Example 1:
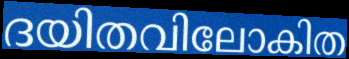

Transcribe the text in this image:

ദയിതവിലോകിത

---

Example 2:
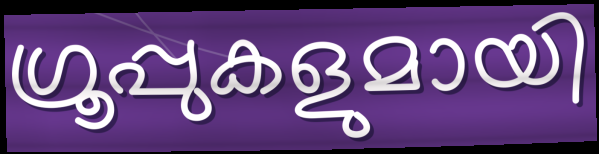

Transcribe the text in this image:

ഗ്രൂപ്പുകളുമായി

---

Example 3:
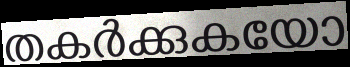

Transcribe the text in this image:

തകർക്കുകയോ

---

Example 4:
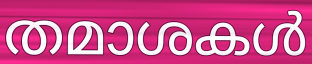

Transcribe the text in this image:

തമാശകൾ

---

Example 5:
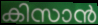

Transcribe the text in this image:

കിസാൻ